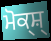
ਮੋਕ੍ਸ਼੍